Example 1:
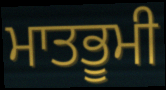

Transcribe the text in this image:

ਮਾਤਭੂਮੀ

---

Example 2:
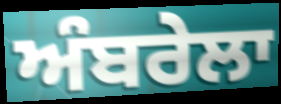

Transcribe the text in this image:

ਅੰਬਰੇਲਾ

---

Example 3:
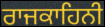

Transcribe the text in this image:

ਰਾਜਕਾਹਿਨੀ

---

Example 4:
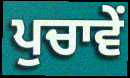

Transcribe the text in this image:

ਪੁਚਾਵੇਂ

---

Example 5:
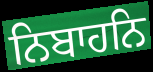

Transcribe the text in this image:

ਨਿਬਾਹਨਿ